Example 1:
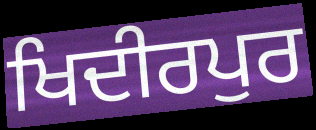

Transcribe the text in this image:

ਖਿਦੀਰਪੁਰ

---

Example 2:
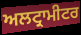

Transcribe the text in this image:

ਅਲਟ੍ਰਾਮੀਟਰ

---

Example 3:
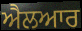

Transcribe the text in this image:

ਐਲਆਰ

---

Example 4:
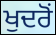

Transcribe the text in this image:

ਖੁਦਰੋਂ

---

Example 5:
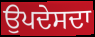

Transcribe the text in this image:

ਉਪਦੇਸਦਾ